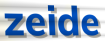
zeide